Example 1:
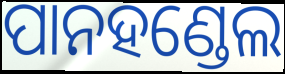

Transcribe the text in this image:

ପାନହଣ୍ଡେଲ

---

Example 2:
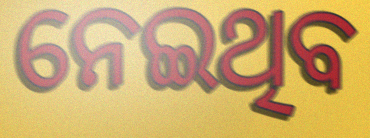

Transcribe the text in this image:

ନେଇଥିବ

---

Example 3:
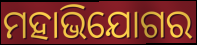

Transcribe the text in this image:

ମହାଭିଯୋଗର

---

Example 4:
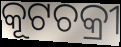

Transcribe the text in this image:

କୂଟଚକ୍ରୀ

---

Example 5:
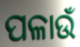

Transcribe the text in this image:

ପଳାଉଁ